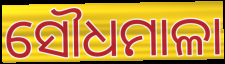
ସୌଧମାଳା